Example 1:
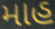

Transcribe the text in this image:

માહ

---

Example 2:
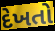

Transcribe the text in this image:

દેખતો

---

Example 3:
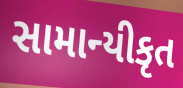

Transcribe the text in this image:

સામાન્યીકૃત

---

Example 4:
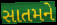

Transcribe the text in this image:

સાતમને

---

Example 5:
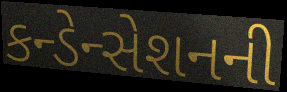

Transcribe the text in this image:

કન્ડેન્સેશનની